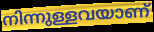
നിന്നുള്ളവയാണ്